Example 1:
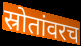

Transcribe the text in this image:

स्रोतांवरच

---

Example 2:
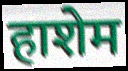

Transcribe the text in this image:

हाशेम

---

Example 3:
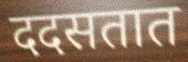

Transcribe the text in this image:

ददसतात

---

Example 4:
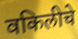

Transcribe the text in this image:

वकिलीचे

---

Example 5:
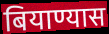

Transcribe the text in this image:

बियाण्यास